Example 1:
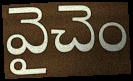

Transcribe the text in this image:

వైచెం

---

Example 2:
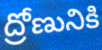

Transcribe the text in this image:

ద్రోణునికి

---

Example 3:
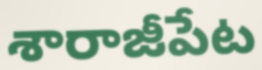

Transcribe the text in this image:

శారాజీపేట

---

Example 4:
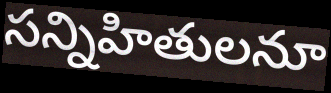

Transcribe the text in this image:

సన్నిహితులనూ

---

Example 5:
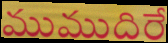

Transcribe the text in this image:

ముముదిరే